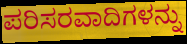
ಪರಿಸರವಾದಿಗಳನ್ನು